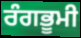
ਰੰਗਭੂਮੀ